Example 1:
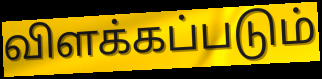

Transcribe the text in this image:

விளக்கப்படும்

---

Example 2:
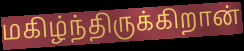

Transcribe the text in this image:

மகிழ்ந்திருக்கிறான்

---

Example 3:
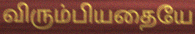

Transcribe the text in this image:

விரும்பியதையே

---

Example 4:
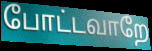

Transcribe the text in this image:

போட்டவாறே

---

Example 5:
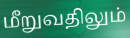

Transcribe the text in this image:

மீறுவதிலும்